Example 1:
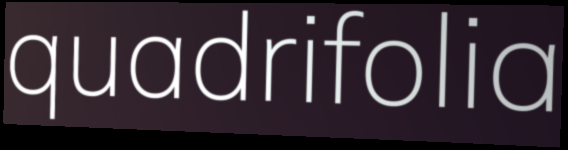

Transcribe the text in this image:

quadrifolia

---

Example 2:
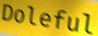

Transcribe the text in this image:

Doleful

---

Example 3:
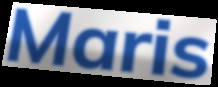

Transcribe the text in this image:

Maris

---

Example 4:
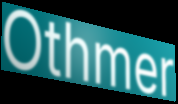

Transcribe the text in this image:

Othmer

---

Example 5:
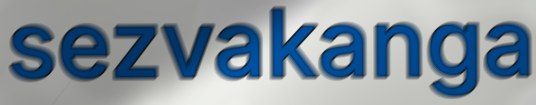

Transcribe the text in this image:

sezvakanga